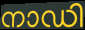
നാഡി